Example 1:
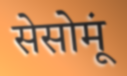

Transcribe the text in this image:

सेसोमूं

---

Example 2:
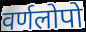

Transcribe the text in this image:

वर्णलोपो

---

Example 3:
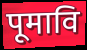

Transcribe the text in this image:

पूमावि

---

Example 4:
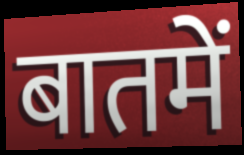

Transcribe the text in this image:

बातमें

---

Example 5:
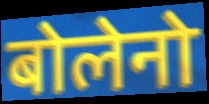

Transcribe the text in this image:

बोलेनो